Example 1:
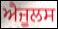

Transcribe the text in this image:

ਐਜੂਲਸ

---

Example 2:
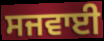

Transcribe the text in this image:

ਸਜਵਾਈ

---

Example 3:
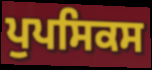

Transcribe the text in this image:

ਪੁਪਸਿਕਸ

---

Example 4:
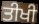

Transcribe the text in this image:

ਤੀਖੀ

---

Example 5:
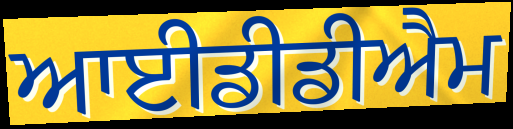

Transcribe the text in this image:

ਆਈਡੀਡੀਐਮ